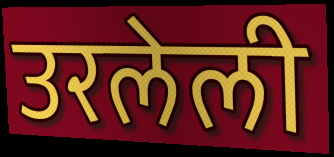
उरलेली